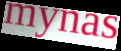
mynas